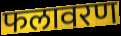
फलावरण